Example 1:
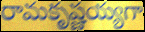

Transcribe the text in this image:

రామకృష్ణయ్యగా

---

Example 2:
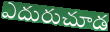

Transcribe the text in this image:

ఎదురుచూడ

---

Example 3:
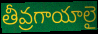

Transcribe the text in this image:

తీవ్రగాయాలై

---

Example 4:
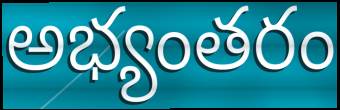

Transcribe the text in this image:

అభ్యంతరం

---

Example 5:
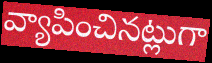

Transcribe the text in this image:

వ్యాపించినట్లుగా